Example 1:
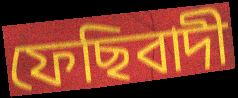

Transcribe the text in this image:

ফেছিবাদী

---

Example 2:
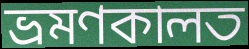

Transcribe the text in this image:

ভ্ৰমণকালত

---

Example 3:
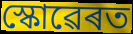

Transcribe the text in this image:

স্কোৱেৰত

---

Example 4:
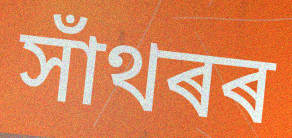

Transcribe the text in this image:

সাঁথৰৰ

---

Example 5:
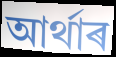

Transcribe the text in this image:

আৰ্থাৰ